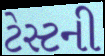
ટેસ્ટની